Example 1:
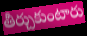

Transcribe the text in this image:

తీర్చుకుంటారు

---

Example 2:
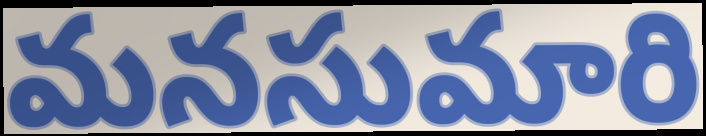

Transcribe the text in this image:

మనసుమారి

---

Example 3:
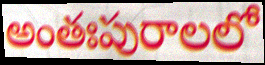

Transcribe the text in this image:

అంతఃపురాలలో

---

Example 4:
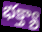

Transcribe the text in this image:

భక్త్యా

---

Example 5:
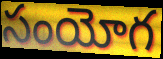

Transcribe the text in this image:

సంయోగ